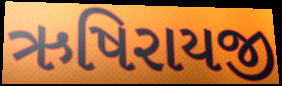
ઋષિરાયજી